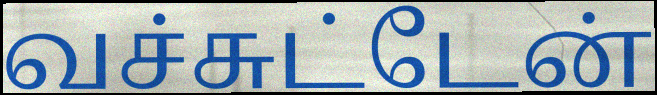
வச்சுட்டேன்